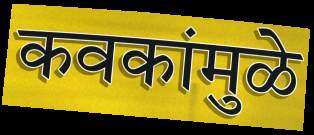
कवकांमुळे